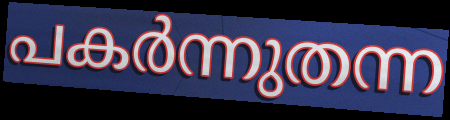
പകർന്നുതന്ന